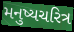
મનુષ્યચરિત્ર